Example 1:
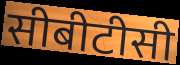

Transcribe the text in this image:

सीबीटीसी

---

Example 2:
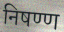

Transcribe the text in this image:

निषण्ण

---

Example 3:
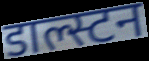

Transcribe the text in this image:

डाल्स्टन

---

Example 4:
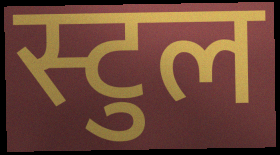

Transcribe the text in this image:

स्टुल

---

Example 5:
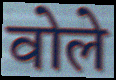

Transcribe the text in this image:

वोले